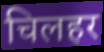
चिलहर